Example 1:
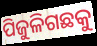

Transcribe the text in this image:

ପିଜୁଳିଗଛକୁ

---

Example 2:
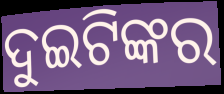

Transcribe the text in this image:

ଦୁଇଟିଙ୍କର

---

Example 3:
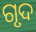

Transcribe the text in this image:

ଗୃଦ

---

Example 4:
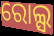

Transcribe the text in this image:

ରୋଲ୍ସ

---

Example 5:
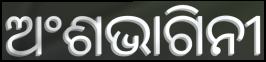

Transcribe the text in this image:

ଅଂଶଭାଗିନୀ